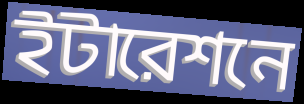
ইটারেশনে